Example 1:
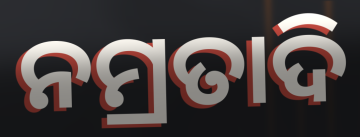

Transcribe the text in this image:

ନମ୍ରତାଦି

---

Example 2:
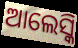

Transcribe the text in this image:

ଆଲେସ୍କି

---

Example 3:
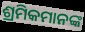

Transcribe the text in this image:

ଶ୍ରମିକମାନଙ୍କ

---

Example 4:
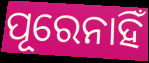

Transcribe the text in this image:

ପୂରେନାହିଁ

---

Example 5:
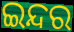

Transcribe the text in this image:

ଇନ୍ଦର